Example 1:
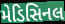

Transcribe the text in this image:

મેડિસિનલ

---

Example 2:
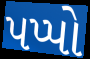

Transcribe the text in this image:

પપ્પો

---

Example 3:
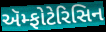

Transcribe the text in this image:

ઍમ્ફોટેરિસિન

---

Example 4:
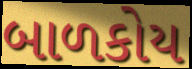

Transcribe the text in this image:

બાળકોય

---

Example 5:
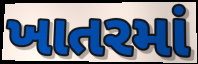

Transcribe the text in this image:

ખાતરમાં